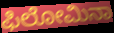
ಫಿಲೋಮಿನಾ